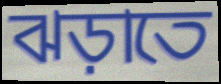
ঝড়াতে